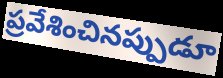
ప్రవేశించినప్పుడూ